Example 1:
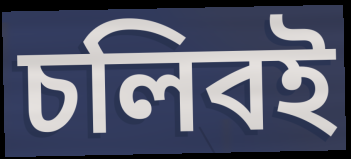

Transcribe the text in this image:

চলিবই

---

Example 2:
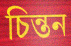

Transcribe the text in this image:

চিন্তন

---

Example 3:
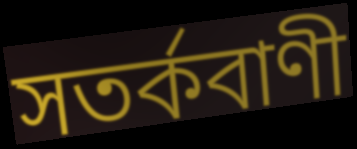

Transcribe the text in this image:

সতৰ্কবাণী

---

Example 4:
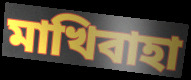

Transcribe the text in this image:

মাখিবাহা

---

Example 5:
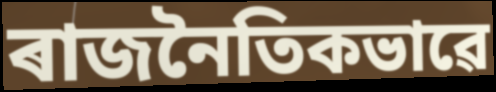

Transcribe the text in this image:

ৰাজনৈতিকভাৱে